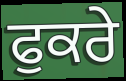
ਫੁਕਰੇ